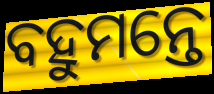
ବହୁମନ୍ତେ